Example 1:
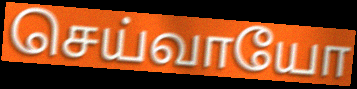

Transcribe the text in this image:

செய்வாயோ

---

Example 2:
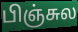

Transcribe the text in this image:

பிஞ்சுல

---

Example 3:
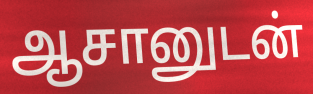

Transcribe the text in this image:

ஆசானுடன்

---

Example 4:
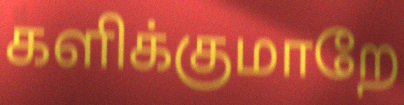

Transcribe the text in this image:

களிக்குமாறே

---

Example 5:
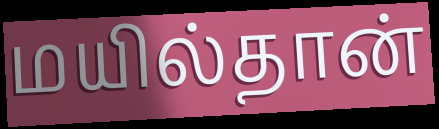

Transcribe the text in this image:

மயில்தான்